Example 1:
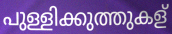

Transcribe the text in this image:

പുള്ളിക്കുത്തുകള്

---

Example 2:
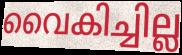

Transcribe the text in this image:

വൈകിച്ചില്ല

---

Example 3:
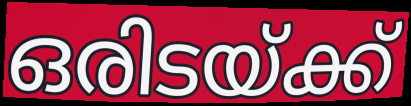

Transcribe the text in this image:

ഒരിടയ്ക്ക്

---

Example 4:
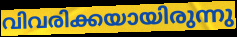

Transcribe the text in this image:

വിവരിക്കയായിരുന്നു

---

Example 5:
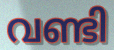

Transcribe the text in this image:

വണ്ടി